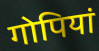
गोपियां